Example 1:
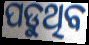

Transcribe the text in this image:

ପଡୁଥିବ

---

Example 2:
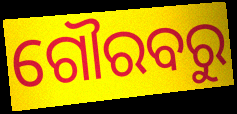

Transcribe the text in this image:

ଗୌରବରୁ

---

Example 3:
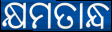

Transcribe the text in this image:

କ୍ଷମତାନ୍ଧ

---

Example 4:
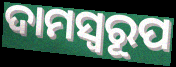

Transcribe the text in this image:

ଦାମସ୍ୱରୂପ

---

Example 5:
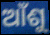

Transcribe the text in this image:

ଆଁଶୁ